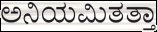
ಅನಿಯಮಿತತ್ತಾ